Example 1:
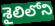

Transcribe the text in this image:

శైలిలోని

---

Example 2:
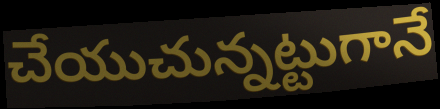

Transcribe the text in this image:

చేయుచున్నట్టుగానే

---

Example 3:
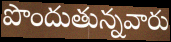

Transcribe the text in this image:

పొందుతున్నవారు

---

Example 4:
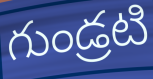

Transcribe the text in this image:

గుండ్రటి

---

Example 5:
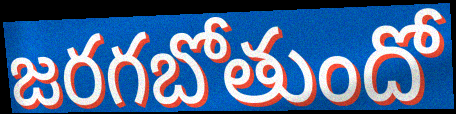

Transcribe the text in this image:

జరగబోతుందో